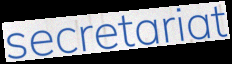
secretariat